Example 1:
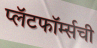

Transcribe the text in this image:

प्लॅटफॉर्म्सची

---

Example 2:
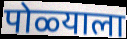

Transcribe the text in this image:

पोळ्याला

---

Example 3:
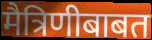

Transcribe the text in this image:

मैत्रिणीबाबत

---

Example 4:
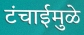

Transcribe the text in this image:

टंचाईमुळे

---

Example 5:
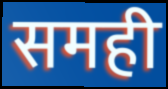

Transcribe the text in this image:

समही